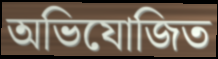
অভিযোজিত